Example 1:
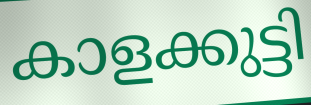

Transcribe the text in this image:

കാളക്കുട്ടി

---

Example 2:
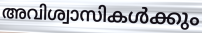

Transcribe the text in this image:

അവിശ്വാസികൾക്കും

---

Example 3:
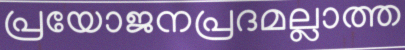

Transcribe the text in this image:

പ്രയോജനപ്രദമല്ലാത്ത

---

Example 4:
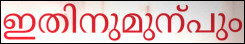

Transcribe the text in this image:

ഇതിനുമുന്പും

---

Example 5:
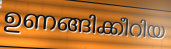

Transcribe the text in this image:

ഉണങ്ങിക്കീറിയ